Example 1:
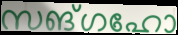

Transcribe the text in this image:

സങ്ഗഹോ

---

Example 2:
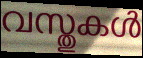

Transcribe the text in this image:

വസ്തുകൾ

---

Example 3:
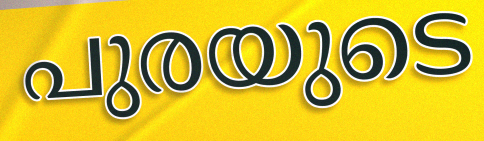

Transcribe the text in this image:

പുരയുടെ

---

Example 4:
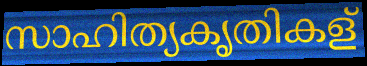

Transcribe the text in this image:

സാഹിത്യകൃതികള്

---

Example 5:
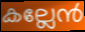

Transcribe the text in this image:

കല്ലേൻ